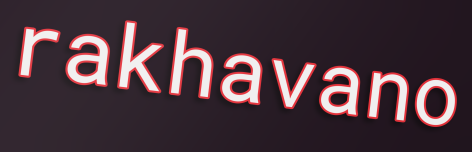
rakhavano